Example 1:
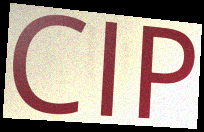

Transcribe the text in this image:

CIP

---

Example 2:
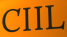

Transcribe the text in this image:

CIIL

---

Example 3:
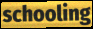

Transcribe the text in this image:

schooling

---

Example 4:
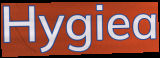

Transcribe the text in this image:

Hygiea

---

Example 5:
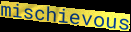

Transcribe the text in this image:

mischievous